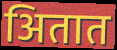
अितात